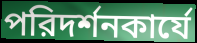
পরিদর্শনকার্যে